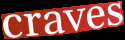
craves